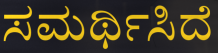
ಸಮರ್ಥಿಸಿದೆ